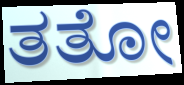
ತತೋ